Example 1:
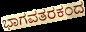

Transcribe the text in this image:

ಭಾಗವತರಕಂದ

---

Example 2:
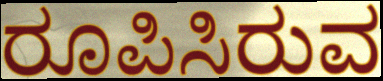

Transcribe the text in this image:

ರೂಪಿಸಿರುವ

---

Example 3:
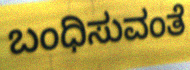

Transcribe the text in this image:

ಬಂಧಿಸುವಂತೆ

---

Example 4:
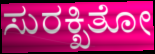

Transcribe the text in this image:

ಸುರಕ್ಖಿತೋ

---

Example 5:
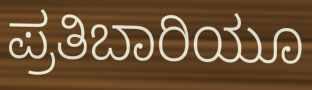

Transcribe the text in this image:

ಪ್ರತಿಬಾರಿಯೂ